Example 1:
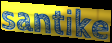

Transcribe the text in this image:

santike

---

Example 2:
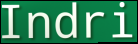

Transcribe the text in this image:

Indri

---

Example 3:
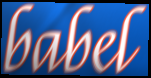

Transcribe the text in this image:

babel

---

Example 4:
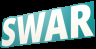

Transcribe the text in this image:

SWAR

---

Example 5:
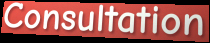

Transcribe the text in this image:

Consultation